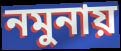
নমুনায়